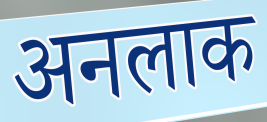
अनलाक